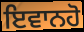
ਇਵਾਨਹੋ